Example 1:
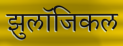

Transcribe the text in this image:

झुलॉजिकल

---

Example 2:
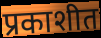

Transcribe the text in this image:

प्रकाशीत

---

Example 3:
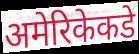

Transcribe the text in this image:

अमेरिकेकडे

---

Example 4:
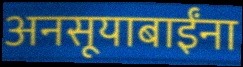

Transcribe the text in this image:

अनसूयाबाईंना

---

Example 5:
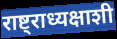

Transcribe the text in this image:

राष्ट्राध्यक्षाशी